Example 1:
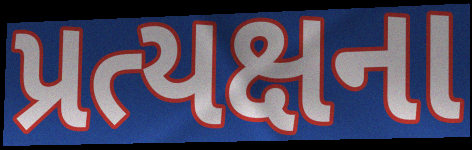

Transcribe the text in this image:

પ્રત્યક્ષના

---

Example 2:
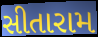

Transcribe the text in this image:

સીતારામ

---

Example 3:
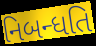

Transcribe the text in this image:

નિબન્ધતિ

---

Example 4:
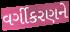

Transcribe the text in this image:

વર્ગીકરણને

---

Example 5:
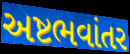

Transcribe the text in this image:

અષ્ટભવાંતર